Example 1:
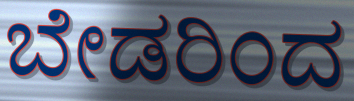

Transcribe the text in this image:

ಬೇಡರಿಂದ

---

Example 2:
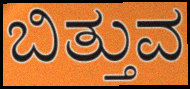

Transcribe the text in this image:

ಬಿತ್ತುವ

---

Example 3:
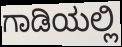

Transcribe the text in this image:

ಗಾಡಿಯಲ್ಲಿ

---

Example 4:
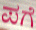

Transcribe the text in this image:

ಪಗೆ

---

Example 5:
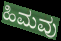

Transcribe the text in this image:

ಹಿಮವು